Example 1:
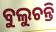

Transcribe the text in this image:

ବୁଲୁଚନ୍ତି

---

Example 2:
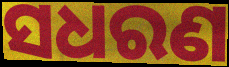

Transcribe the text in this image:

ସଧରଣ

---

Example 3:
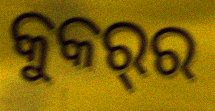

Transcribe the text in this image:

କୁକର୍‌ର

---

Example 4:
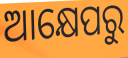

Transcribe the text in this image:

ଆକ୍ଷେପରୁ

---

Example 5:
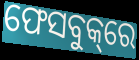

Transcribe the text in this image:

ଫେସବୁକ୍‌ରେ